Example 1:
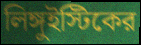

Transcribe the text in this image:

লিঙ্গুইস্টিকের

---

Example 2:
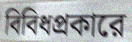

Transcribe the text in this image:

বিবিধপ্রকারে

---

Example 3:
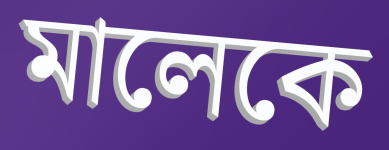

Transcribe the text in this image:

মালেকে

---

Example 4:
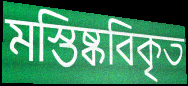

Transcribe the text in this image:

মস্তিষ্কবিকৃত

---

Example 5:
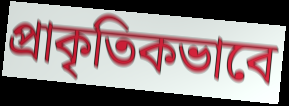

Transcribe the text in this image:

প্রাকৃতিকভাবে